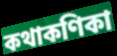
কথাকণিকা